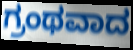
ಗ್ರಂಥವಾದ